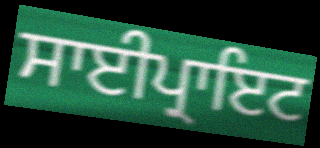
ਸਾਈਪ੍ਰਾਇਟ